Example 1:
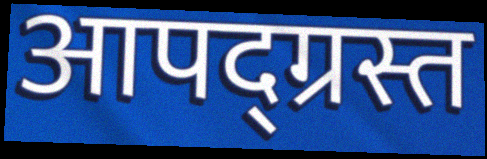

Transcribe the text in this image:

आपद्ग्रस्त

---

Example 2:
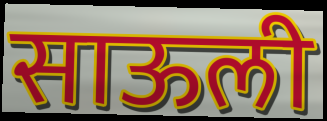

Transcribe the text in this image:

साऊली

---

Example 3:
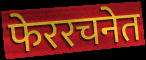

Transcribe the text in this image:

फेररचनेत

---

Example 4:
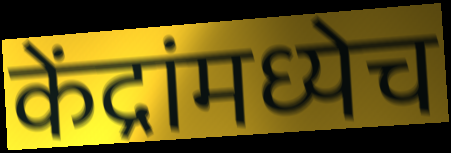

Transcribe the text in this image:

केंद्रांमध्येच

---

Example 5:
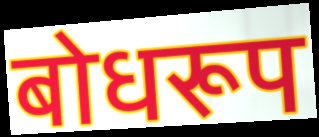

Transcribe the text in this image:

बोधरूप